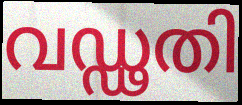
വഡ്ഢതി